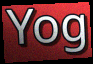
Yog